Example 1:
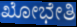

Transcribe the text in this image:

ಖೋಭೇತಿ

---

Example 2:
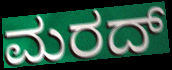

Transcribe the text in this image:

ಮರದ್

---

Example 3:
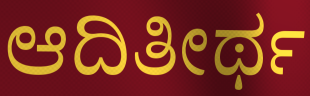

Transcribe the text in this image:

ಆದಿತೀರ್ಥ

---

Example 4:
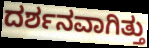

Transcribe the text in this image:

ದರ್ಶನವಾಗಿತ್ತು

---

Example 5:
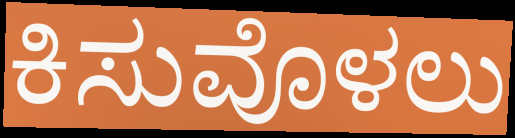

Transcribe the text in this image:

ಕಿಸುವೊಳಲು